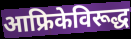
आफ्रिकेविरूद्ध